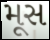
મૂસ